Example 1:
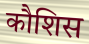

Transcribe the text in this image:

कौशिस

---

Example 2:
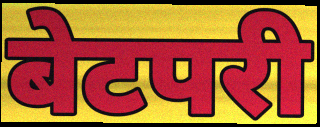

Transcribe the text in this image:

बेटपरी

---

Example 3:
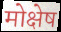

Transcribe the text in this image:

मोक्षेष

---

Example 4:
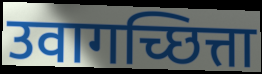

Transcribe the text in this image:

उवागच्छित्ता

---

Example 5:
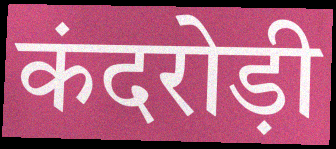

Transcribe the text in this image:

कंदरोड़ी